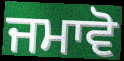
ਜਮਾਵੋ